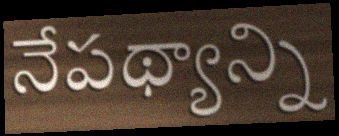
నేపథ్యాన్ని